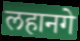
लहानगे